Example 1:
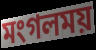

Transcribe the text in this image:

মংগলময়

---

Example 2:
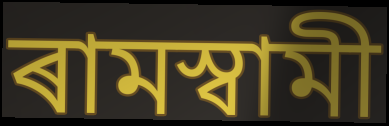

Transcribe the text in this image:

ৰামস্বামী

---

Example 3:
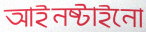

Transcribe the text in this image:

আইনষ্টাইনো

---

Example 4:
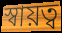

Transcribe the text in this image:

স্বায়ত্ব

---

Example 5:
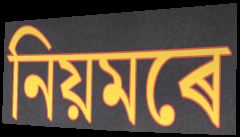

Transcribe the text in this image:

নিয়মৰে